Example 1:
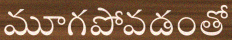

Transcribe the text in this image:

మూగపోవడంతో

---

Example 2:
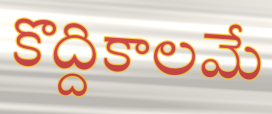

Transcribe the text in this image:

కొద్దికాలమే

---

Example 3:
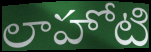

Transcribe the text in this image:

లాహోటి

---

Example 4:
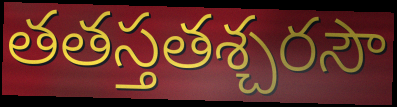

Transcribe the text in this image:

తతస్తతశ్చరసౌ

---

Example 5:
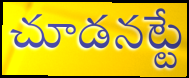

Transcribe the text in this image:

చూడనట్టే